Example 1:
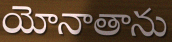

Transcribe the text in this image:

యోనాతాను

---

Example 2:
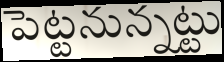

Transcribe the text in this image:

పెట్టనున్నట్టు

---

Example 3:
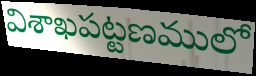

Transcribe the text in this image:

విశాఖపట్టణములో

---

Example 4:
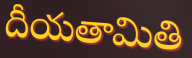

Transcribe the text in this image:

దీయతామితి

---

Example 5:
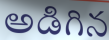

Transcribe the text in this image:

అడిగిన